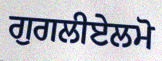
ਗੁਗਲੀਏਲਮੋ